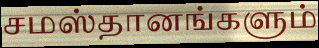
சமஸ்தானங்களும்